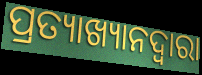
ପ୍ରତ୍ୟାଖ୍ୟାନଦ୍ଵାରା